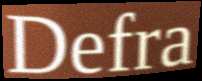
Defra